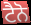
ਟੈਨੋ